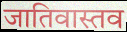
जातिवास्तव